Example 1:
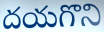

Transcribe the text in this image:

దయగొని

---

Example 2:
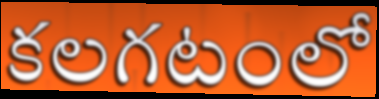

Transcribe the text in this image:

కలగటంలో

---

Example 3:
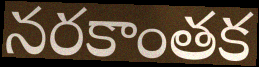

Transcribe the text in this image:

నరకాంతక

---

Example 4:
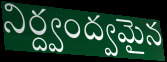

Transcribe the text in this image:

నిర్ద్వంద్వమైన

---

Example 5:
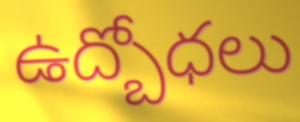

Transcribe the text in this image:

ఉద్బోధలు